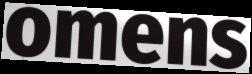
omens